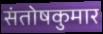
संतोषकुमार